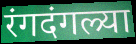
रंगदंगल्या